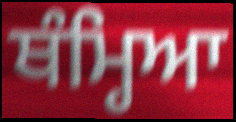
ਥੰਮ੍ਹਿਆ